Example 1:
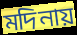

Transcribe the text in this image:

মদিনায়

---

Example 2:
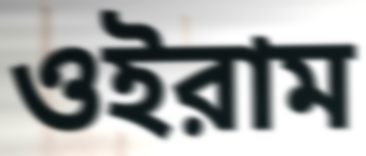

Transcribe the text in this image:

ওইরাম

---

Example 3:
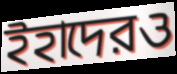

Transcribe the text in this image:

ইহাদেরও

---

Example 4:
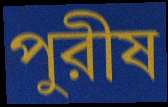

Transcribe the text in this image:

পুরীষ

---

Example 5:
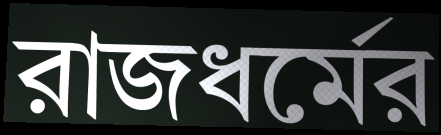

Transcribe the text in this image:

রাজধর্মের